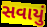
સવાયું